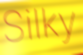
Silky